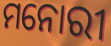
ମନୋରୀ